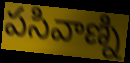
పసివాణ్ని